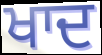
ਖਾਦ